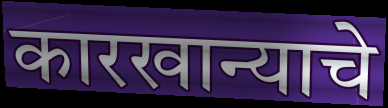
कारखान्याचे